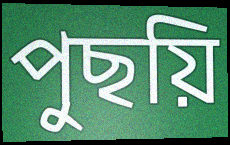
পুছয়ি